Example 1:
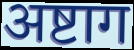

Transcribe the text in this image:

अष्टाग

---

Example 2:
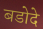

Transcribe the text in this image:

बडोदे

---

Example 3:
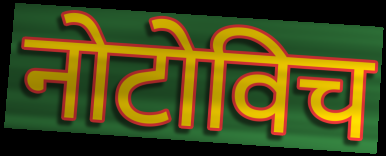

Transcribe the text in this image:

नोटोविच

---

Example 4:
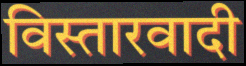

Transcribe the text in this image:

विस्तारवादी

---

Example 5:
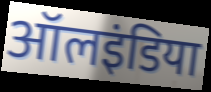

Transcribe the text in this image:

ऑलइंडिया